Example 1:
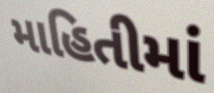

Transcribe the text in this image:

માહિતીમાં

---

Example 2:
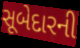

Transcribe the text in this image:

સૂબેદારની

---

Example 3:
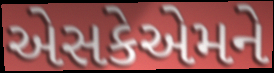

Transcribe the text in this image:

એસકેએમને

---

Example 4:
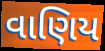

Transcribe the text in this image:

વાણિય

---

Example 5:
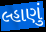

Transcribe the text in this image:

લ્હાણું